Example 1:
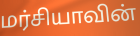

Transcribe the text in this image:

மர்சியாவின்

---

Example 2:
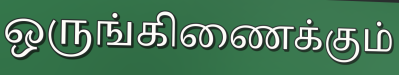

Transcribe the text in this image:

ஒருங்கிணைக்கும்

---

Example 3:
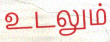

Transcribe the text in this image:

உடலும்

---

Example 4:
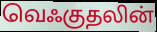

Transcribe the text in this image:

வெஃகுதலின்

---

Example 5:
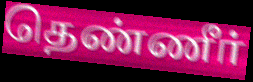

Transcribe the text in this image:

தெண்ணீர்